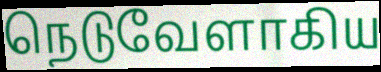
நெடுவேளாகிய